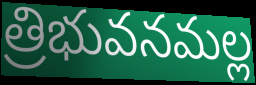
త్రిభువనమల్ల